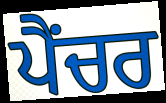
ਪੈਂਚਰ